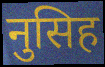
नुसिह